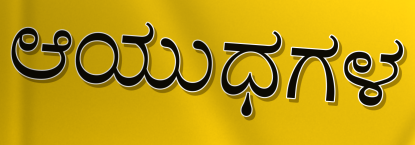
ಆಯುಧಗಳ